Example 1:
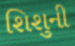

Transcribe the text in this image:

શિશુની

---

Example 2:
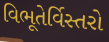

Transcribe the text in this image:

વિભૂતેર્વિસ્તરો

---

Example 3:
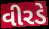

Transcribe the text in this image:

વીરડે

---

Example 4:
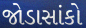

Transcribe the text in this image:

જોડાસાંકો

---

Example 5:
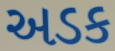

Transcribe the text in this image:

અડક